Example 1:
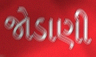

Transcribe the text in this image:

જોડાણી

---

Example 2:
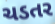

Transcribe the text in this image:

ચડતર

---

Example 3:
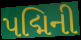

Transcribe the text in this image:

પદ્મિની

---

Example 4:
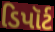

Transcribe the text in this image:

ડિપૉર્ટ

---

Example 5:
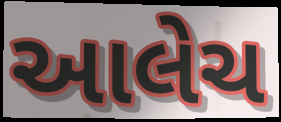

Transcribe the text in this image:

આલેચ